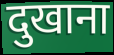
दुखाना